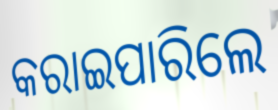
କରାଇପାରିଲେ